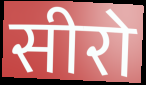
सीरो